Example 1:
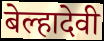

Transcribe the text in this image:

बेल्हादेवी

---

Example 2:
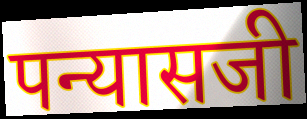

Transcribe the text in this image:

पन्यासजी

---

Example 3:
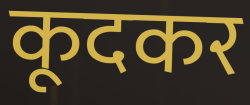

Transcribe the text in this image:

कूदकर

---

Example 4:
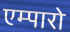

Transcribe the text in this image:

एम्पारो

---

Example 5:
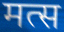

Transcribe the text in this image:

मत्स